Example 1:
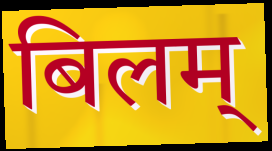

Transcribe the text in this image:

बिलम्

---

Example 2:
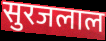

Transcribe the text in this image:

सुरजलाल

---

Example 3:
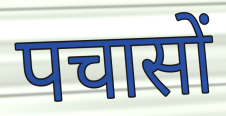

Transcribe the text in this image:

पचासों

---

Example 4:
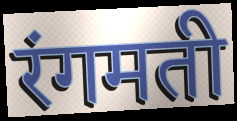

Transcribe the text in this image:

रंगमती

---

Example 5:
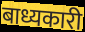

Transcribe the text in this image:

बाध्यकारी